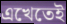
এখেতেই